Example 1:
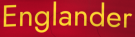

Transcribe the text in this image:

Englander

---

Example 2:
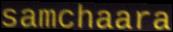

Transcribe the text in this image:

samchaara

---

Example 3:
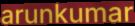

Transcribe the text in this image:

arunkumar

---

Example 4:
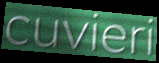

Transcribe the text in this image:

cuvieri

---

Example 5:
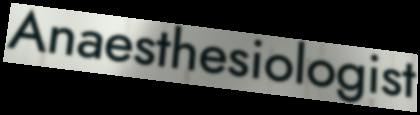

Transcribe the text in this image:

Anaesthesiologist